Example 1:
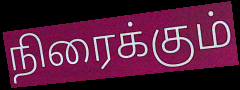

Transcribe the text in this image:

நிரைக்கும்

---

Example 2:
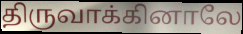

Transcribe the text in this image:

திருவாக்கினாலே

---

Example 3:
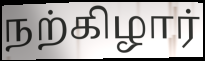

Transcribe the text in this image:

நற்கிழார்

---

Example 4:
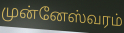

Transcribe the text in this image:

முன்னேஸ்வரம்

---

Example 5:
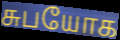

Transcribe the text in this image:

சுபயோக